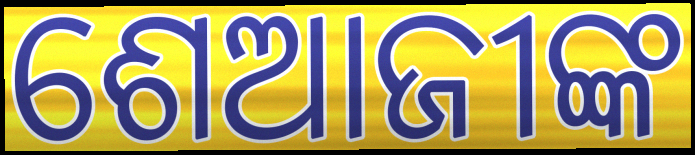
ଶେଆଜୀଙ୍କ